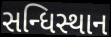
સન્ધિસ્થાન